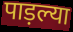
पाड़ल्या